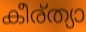
കീര്ത്യാ